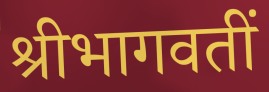
श्रीभागवतीं